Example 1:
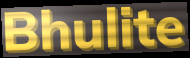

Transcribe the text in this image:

Bhulite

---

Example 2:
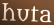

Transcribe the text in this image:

huta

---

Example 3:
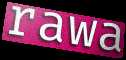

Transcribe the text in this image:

rawa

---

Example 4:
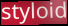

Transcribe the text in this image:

styloid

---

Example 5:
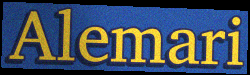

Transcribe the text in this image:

Alemari